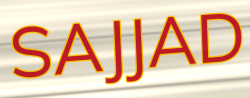
SAJJAD